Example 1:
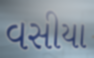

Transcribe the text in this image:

વસીયા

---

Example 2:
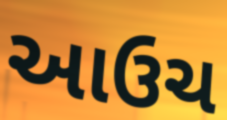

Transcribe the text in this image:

આઉચ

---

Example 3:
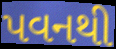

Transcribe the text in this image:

પવનથી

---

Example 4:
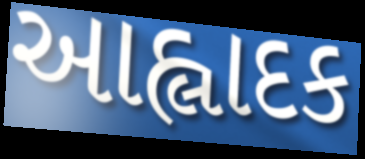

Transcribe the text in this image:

આહ્લાદક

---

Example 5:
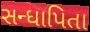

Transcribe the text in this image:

સન્ધાપિતા